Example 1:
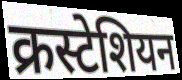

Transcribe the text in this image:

क्रस्टेशियन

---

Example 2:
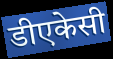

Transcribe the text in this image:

डीएकेसी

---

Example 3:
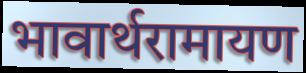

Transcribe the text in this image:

भावार्थरामायण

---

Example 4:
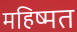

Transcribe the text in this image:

महिष्मत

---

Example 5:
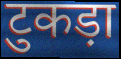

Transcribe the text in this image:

टुकड़ा